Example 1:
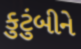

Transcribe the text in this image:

કુટુંબીને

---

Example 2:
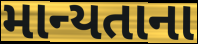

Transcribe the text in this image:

માન્યતાના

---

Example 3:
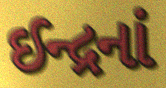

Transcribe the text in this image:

ઈન્દ્રનાં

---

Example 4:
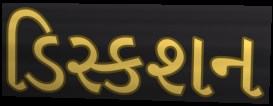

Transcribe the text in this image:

ડિસ્કશન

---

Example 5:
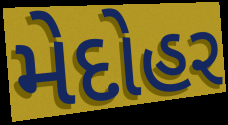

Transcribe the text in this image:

મેદોહર